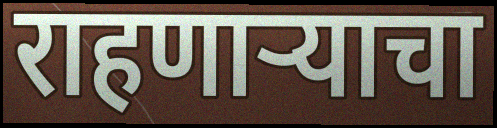
राहणाऱ्याचा